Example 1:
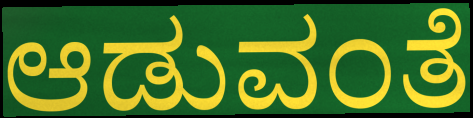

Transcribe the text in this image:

ಆಡುವಂತೆ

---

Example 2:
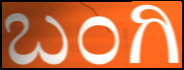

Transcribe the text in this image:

ಬಂಗಿ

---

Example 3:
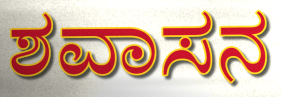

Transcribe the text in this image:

ಶವಾಸನ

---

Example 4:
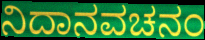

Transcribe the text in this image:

ನಿದಾನವಚನಂ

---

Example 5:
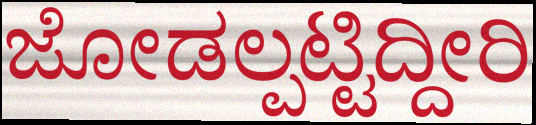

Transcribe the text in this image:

ಜೋಡಲ್ಪಟ್ಟಿದ್ದೀರಿ